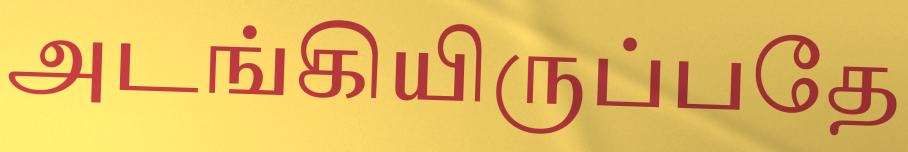
அடங்கியிருப்பதே